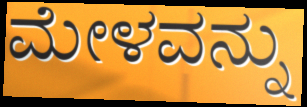
ಮೇಳವನ್ನು